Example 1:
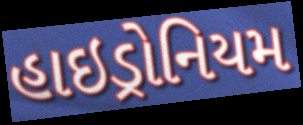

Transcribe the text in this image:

હાઇડ્રોનિયમ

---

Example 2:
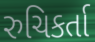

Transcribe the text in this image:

રુચિકર્તા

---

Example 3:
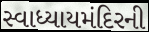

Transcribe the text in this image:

સ્વાધ્યાયમંદિરની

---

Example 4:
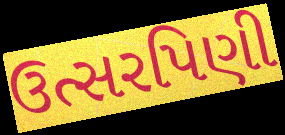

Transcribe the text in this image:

ઉત્સરપિણી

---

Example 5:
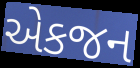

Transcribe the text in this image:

એકજન